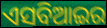
ଏସବିଆଇର